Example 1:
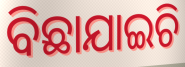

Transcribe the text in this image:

ବିଛାଯାଇଚି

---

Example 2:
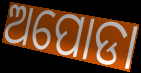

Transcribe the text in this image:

ଅପୋଡା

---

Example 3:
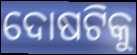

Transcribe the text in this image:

ଦୋଷଟିକୁ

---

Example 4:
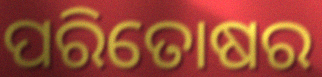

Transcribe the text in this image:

ପରିତୋଷର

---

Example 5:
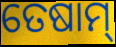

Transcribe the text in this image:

ତେଷାମ୍